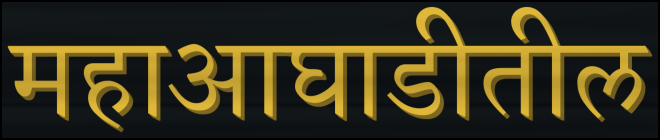
महाआघाडीतील